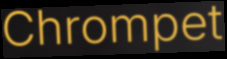
Chrompet